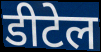
डीटेल